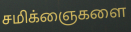
சமிக்ஞைகளை